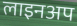
लाइनअप